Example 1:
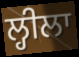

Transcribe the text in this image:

ਲ੍ਹੀਲਾ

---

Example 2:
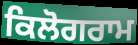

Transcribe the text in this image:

ਕਿਲੋਗਰਾਮ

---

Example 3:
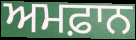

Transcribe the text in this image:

ਅਮਫ਼ਾਨ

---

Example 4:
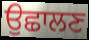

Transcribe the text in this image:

ਉਛਾਲਣ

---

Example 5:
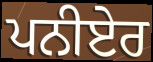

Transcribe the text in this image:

ਪਨੀਏਰ